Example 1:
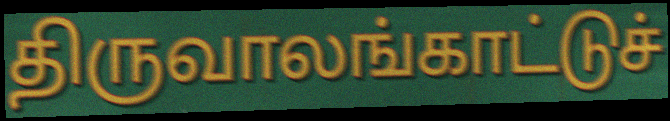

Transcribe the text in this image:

திருவாலங்காட்டுச்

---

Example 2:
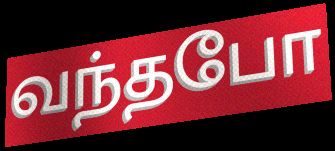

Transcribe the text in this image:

வந்தபோ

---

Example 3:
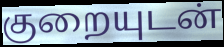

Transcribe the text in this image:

குறையுடன்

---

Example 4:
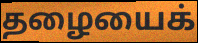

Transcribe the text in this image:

தழையைக்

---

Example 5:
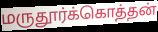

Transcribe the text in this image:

மருதூர்க்கொத்தன்